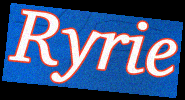
Ryrie